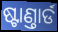
ଷ୍ଟାଣ୍ତାର୍ଡ